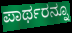
ಪಾರ್ಥರನ್ನೂ